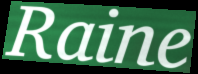
Raine